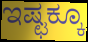
ಇಷ್ಟಕ್ಕೂ